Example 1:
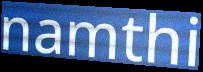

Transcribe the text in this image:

namthi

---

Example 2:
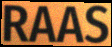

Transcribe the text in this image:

RAAS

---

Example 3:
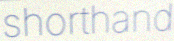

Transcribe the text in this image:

shorthand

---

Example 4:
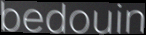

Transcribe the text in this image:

bedouin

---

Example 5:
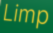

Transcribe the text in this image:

Limp